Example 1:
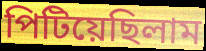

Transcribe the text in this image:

পিটিয়েছিলাম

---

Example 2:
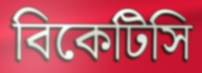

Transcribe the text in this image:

বিকেটিসি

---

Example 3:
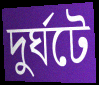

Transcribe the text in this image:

দুর্ঘটে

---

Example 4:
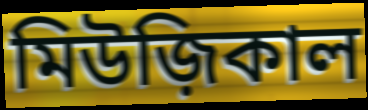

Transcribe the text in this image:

মিউজ়িকাল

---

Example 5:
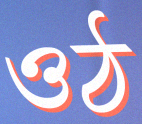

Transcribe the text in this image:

ওঠ